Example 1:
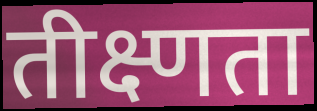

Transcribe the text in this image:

तीक्ष्णता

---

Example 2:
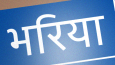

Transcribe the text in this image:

भरिया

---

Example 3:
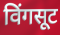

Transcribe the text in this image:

विंगसूट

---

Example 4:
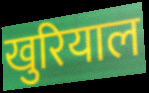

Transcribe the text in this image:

खुरियाल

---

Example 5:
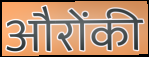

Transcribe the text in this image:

औरोंकी